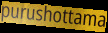
purushottama